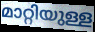
മാറ്റിയുള്ള